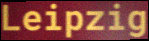
Leipzig